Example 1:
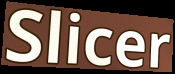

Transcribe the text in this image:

Slicer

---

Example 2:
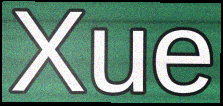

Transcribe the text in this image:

Xue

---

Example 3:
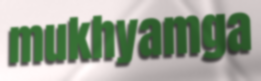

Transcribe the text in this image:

mukhyamga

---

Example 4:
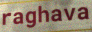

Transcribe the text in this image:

raghava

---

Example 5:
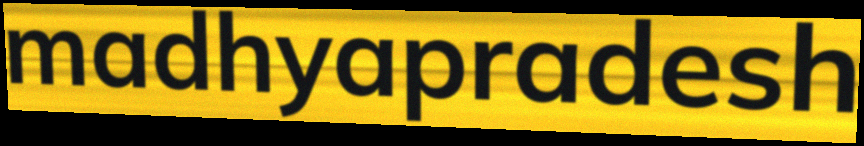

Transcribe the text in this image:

madhyapradesh